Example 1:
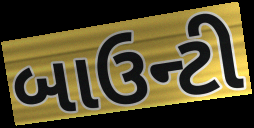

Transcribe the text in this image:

બાઉન્ટી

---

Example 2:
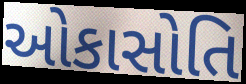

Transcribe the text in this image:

ઓકાસોતિ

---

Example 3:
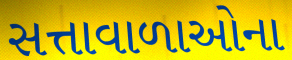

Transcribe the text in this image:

સત્તાવાળાઓના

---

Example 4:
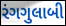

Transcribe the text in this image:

રંગગુલાબી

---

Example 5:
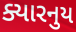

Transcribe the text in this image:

ક્યારનુય